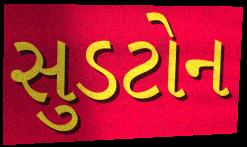
સુડટોન